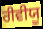
ਰੀਵੀਯੂ